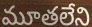
మూతలేని